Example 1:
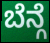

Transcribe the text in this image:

ಬೆನ್ಗೆ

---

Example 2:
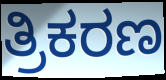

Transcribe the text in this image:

ತ್ರಿಕರಣ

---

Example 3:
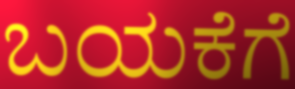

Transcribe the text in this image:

ಬಯಕೆಗೆ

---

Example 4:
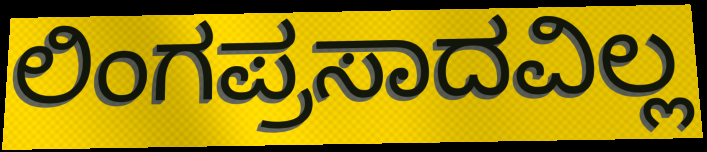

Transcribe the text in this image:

ಲಿಂಗಪ್ರಸಾದವಿಲ್ಲ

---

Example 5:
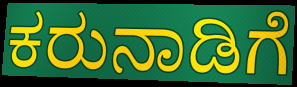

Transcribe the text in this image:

ಕರುನಾಡಿಗೆ